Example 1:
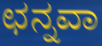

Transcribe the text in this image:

ಛನ್ನವಾ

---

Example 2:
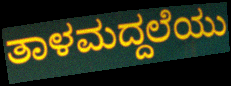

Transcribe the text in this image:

ತಾಳಮದ್ದಲೆಯು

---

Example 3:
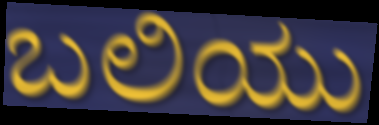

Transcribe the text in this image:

ಬಲಿಯು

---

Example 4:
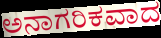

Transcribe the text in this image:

ಅನಾಗರಿಕವಾದ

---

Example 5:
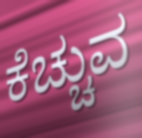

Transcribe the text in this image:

ಕೆಚ್ಚುವ